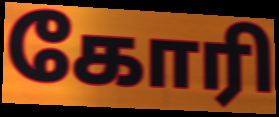
கோரி